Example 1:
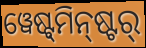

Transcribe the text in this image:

ୱେଷ୍ଟ୍‌ମିନ୍‌ଷ୍ଟର୍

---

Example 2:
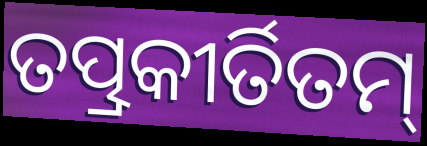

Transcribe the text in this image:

ତତ୍ପ୍ରକୀର୍ତିତମ୍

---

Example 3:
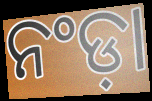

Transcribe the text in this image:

ନଂଡ଼ା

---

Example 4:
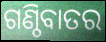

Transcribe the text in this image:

ଗଣ୍ଠିବାତର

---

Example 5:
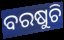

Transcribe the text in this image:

ବରଷୁଚି